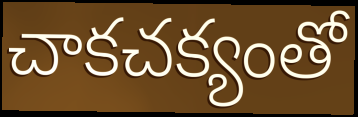
చాకచక్యంతో